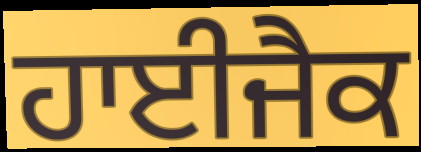
ਹਾਈਜੈਕ